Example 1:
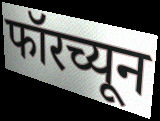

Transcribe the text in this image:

फॉरच्यून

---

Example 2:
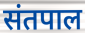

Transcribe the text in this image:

संतपाल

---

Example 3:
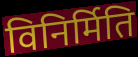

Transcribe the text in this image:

विनिर्मिति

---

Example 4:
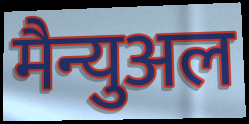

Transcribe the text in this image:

मैन्युअल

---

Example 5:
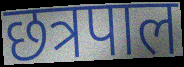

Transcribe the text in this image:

छत्रपाल